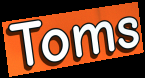
Toms